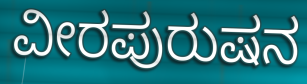
ವೀರಪುರುಷನ